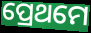
ପ୍ରେଥମେ